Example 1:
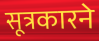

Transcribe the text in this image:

सूत्रकारने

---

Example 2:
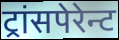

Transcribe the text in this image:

ट्रांसपेरेन्ट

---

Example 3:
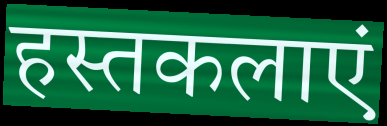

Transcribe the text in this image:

हस्तकलाएं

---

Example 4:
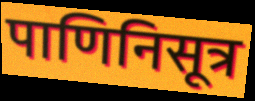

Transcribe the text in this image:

पाणिनिसूत्र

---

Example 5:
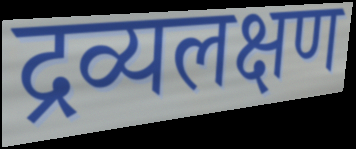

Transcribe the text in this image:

द्रव्यलक्षण